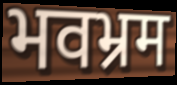
भवभ्रम